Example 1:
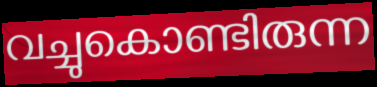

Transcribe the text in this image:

വച്ചുകൊണ്ടിരുന്ന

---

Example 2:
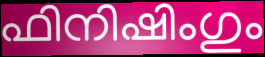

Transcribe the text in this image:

ഫിനിഷിംഗും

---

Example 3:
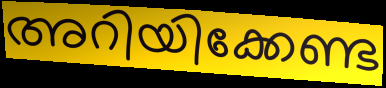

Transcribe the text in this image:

അറിയിക്കേണ്ട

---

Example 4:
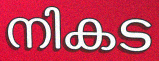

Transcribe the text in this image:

നികട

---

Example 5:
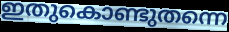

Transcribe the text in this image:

ഇതുകൊണ്ടുതന്നെ